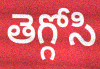
తెగ్గోసి